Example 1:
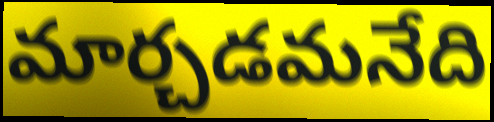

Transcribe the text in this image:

మార్చడమనేది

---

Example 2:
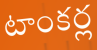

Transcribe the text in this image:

టాంకర్ల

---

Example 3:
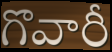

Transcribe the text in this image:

గొవారీ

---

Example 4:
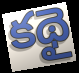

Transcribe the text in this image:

కథై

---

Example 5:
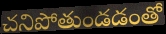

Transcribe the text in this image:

చనిపోతుండడంతో